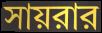
সায়রার